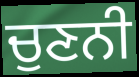
ਚੁਣਨੀ